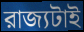
রাজ্যটাই